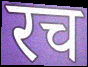
रच